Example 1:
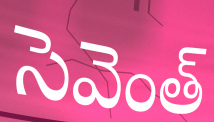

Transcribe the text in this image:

సెవెంత్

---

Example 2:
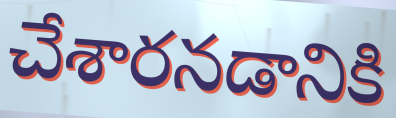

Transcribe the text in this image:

చేశారనడానికి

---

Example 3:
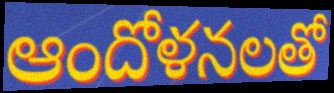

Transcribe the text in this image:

ఆందోళనలతో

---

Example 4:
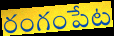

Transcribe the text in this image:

రంగంపేట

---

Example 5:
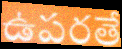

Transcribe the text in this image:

ఉపరతే